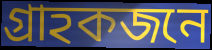
গ্ৰাহকজনে